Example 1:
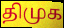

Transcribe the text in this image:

திமுக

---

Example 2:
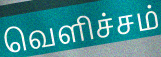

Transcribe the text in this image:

வெளிச்சம்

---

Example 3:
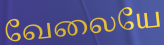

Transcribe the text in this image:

வேலையே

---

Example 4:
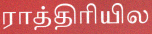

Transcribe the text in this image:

ராத்திரியில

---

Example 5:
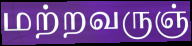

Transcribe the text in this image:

மற்றவருஞ்